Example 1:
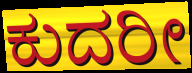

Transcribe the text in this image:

ಕುದರೀ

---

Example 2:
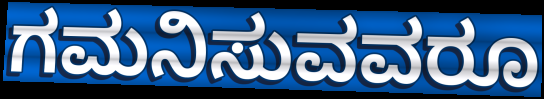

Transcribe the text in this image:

ಗಮನಿಸುವವರೂ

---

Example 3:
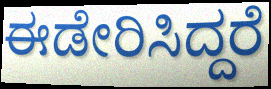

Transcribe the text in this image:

ಈಡೇರಿಸಿದ್ದರೆ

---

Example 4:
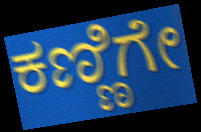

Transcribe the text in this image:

ಕಣ್ಣಿಗೇ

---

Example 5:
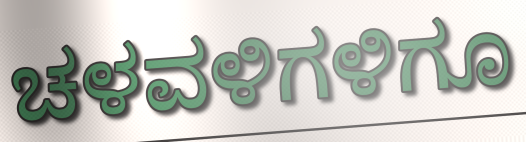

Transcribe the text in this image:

ಚಳವಳಿಗಳಿಗೂ